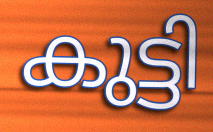
കുട്ടി